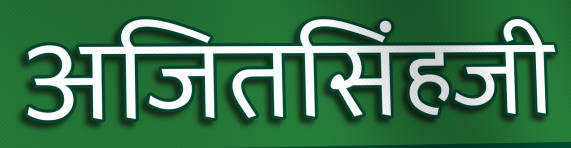
अजितसिंहजी